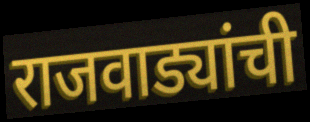
राजवाड्यांची